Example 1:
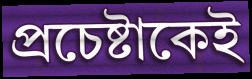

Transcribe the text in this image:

প্রচেষ্টাকেই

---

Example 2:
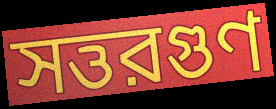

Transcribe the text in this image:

সত্তরগুণ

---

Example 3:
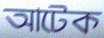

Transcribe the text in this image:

আটেক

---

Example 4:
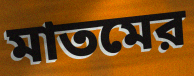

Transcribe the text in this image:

মাতমের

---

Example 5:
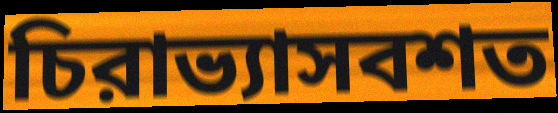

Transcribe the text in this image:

চিরাভ্যাসবশত